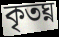
কৃতঘ্ন